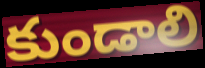
కుండాలి